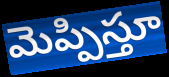
మెప్పిస్తూ